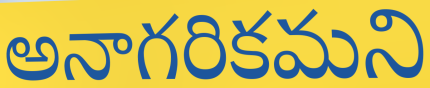
అనాగరికమని